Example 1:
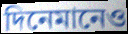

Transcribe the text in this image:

দিনেমানেও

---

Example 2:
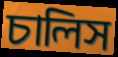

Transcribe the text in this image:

চালিস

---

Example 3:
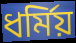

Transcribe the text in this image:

ধর্মিয়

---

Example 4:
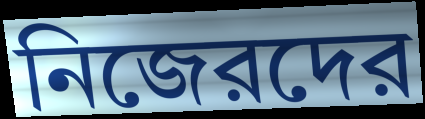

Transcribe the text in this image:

নিজেরদের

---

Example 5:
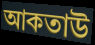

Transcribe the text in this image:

আকতাউ